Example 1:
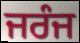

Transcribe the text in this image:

ਜਰੰਜ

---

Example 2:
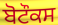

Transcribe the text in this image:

ਬੋਟੌਕਸ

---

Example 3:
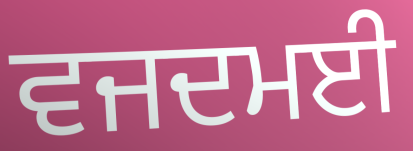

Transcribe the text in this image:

ਵਜਦਮਈ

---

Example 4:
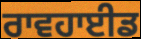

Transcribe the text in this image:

ਰਾਵਹਾਈਡ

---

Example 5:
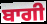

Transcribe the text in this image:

ਬਾਗੀ